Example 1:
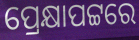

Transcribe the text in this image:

ପ୍ରେକ୍ଷାପଟ୍ଟରେ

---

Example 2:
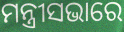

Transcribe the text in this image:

ମନ୍ତ୍ରୀସଭାରେ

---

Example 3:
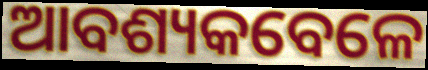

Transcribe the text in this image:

ଆବଶ୍ୟକବେଳେ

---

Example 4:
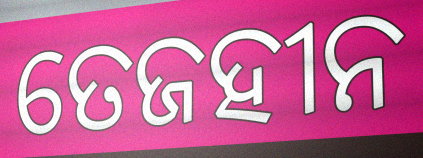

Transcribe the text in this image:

ତେଜହୀନ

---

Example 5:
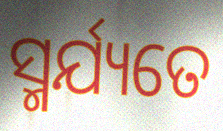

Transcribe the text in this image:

ସ୍ମର୍ଯ୍ୟତେ